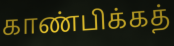
காண்பிக்கத்